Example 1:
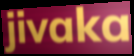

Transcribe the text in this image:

jivaka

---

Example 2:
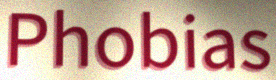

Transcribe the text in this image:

Phobias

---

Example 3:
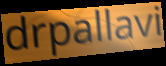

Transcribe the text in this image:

drpallavi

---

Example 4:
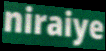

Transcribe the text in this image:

niraiye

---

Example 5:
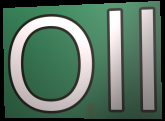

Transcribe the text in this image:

Oll